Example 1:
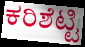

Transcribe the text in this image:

ಕರಿಶೆಟ್ಟಿ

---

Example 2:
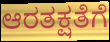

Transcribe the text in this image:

ಆರತಕ್ಷತೆಗೆ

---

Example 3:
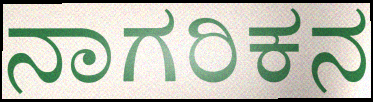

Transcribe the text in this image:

ನಾಗರಿಕನ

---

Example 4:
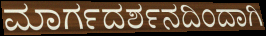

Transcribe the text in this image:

ಮಾರ್ಗದರ್ಶನದಿಂದಾಗಿ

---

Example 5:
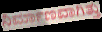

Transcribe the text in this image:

ನಿರ್ಮಾಣವಾಗಿತ್ತು